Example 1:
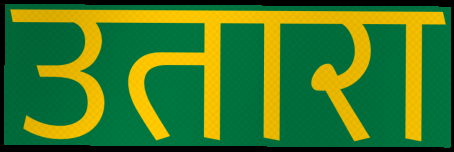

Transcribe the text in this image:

उतारा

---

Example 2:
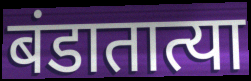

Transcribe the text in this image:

बंडातात्या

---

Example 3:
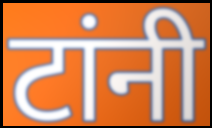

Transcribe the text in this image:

टांनी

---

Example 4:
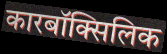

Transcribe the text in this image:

कारबॉक्सिलिक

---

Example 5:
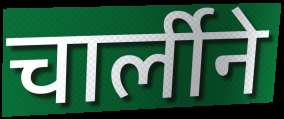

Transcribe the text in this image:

चार्लीने